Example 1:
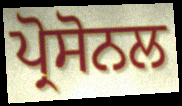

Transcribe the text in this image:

ਪ੍ਰੋਸੋਨਲ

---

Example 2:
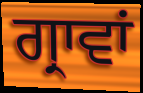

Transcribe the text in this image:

ਗ੍ਰਾਵਾਂ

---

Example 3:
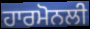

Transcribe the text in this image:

ਹਾਰਮੋਨਲੀ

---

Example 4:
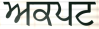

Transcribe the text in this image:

ਅਕਪਟ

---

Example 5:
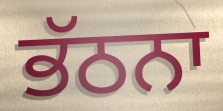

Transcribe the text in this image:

ਭੱਠਨਾ